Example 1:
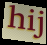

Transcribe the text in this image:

hij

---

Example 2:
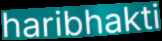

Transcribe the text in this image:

haribhakti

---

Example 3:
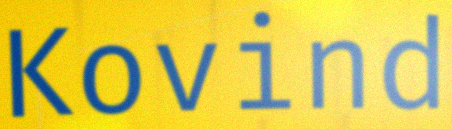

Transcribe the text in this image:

Kovind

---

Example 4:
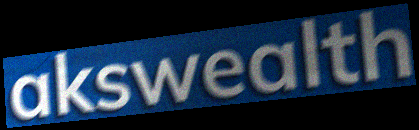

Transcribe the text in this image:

akswealth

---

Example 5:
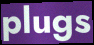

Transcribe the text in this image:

plugs